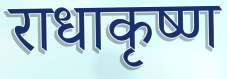
राधाकृष्ण